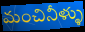
మంచినీళ్ళు